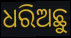
ଧରିଅଛୁ